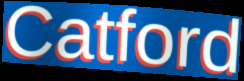
Catford